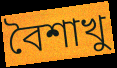
বৈশাখু